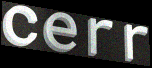
cerr